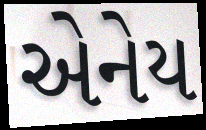
એનેય